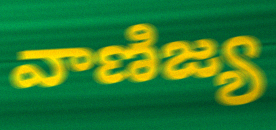
వాణిజ్య